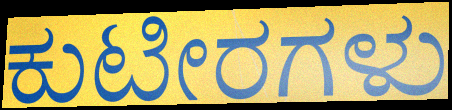
ಕುಟೀರಗಳು